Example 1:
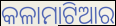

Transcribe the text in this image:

କଳାମାଟିଆର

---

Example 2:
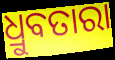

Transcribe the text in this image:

ଧ୍ରୁବତାରା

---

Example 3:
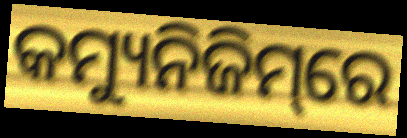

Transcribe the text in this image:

କମ୍ୟୁନିଜିମ୍‌ରେ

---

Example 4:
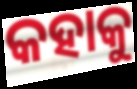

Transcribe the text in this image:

କହାକୁ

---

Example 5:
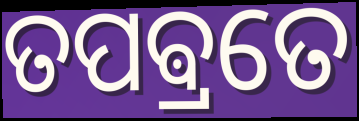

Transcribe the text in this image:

ତପଵ୍ରତେ